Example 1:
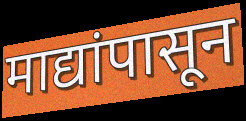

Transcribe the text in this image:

माद्यांपासून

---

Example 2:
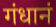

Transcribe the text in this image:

गंधानं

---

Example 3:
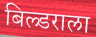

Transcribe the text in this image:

बिल्डराला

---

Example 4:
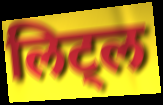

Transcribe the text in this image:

लिट्ल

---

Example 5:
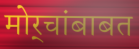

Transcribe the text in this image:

मोर्चांबाबत